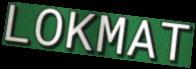
LOKMAT